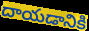
దాయడానికి